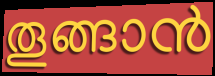
തൂങ്ങാൻ